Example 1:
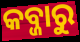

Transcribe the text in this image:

କବ୍ଜାରୁ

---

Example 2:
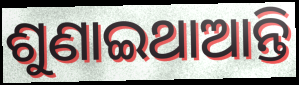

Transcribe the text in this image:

ଶୁଣାଇଥାଆନ୍ତି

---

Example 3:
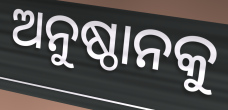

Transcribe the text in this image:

ଅନୁଷ୍ଠାନକୁ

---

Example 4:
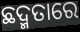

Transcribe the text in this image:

ଛଦ୍ମତାରେ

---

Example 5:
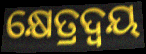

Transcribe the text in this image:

କ୍ଷେତ୍ରଦ୍ଵୟ